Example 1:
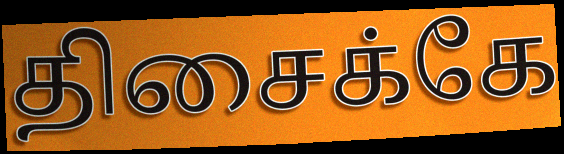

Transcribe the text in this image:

திசைக்கே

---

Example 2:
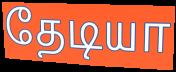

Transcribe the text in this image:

தேடியா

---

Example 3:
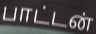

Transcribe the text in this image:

பாட்டன்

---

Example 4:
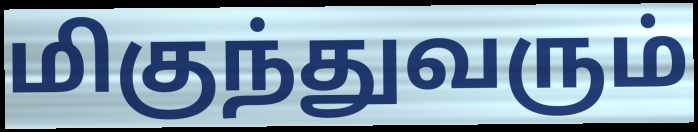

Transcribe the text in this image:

மிகுந்துவரும்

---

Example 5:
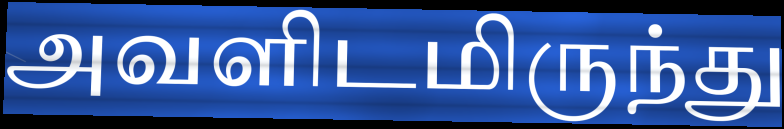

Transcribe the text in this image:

அவளிடமிருந்து